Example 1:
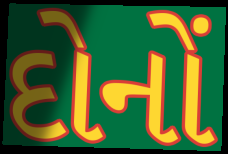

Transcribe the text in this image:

દોનોં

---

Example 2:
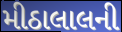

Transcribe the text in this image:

મીઠાલાલની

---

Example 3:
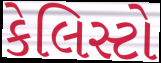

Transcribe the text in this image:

કેલિસ્ટો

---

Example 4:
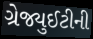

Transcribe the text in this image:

ગ્રેજ્યુઈટીની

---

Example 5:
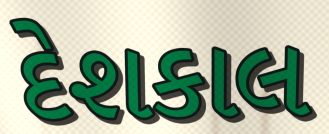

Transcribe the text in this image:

દેશકાલ